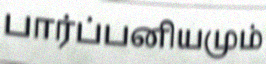
பார்ப்பனியமும்